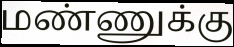
மண்ணுக்கு